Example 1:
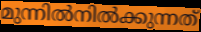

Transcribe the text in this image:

മുന്നിൽനിൽക്കുന്നത്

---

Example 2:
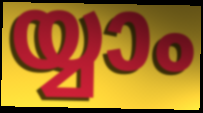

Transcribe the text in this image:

യ്യാം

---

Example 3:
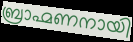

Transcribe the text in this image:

ബ്രാഹ്മണനായി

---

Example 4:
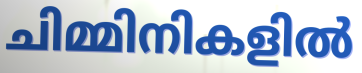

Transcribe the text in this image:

ചിമ്മിനികളിൽ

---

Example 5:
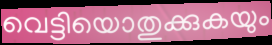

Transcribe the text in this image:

വെട്ടിയൊതുക്കുകയും